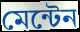
মেন্টেন